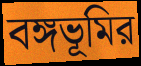
বঙ্গভূমির